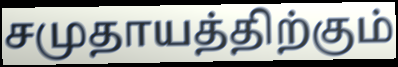
சமுதாயத்திற்கும்